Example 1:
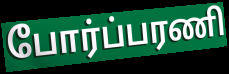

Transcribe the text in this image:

போர்ப்பரணி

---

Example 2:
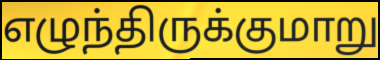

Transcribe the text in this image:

எழுந்திருக்குமாறு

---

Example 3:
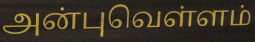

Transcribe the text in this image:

அன்புவெள்ளம்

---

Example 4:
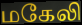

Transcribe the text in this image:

மகேலி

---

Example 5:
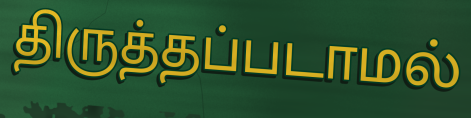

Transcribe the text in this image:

திருத்தப்படாமல்